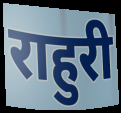
राहुरी